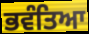
ਭਵੰਤਿਆ